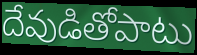
దేవుడితోపాటు